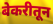
बेकरीतून